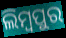
ଲିମ୍ବପୁର